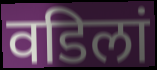
वडिलां